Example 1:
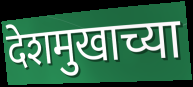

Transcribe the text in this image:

देशमुखाच्या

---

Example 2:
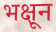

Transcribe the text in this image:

भक्षून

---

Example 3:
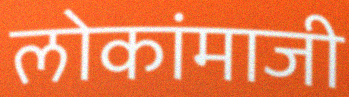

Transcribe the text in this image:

लोकांमाजी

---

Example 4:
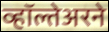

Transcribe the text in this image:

व्हॉल्तेअरने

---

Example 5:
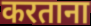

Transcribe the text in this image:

करताना